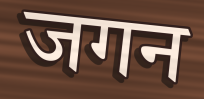
जगन